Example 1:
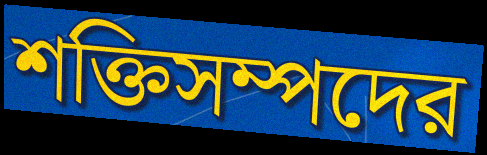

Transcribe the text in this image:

শক্তিসম্পদের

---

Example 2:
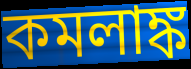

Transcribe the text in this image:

কমলাঙ্ক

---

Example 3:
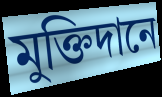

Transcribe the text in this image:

মুক্তিদানে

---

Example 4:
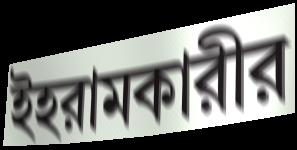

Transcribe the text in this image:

ইহরামকারীর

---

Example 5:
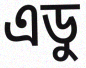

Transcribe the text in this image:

এডু